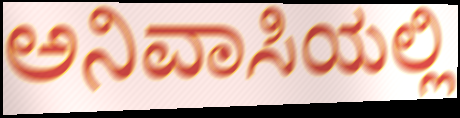
ಅನಿವಾಸಿಯಲ್ಲಿ